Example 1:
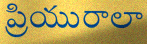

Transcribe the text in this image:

ప్రియురాలా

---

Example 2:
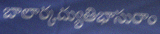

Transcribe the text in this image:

బాలార్కద్యుతిభాసురాం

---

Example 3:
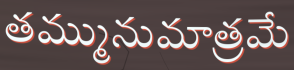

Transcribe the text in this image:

తమ్మునుమాత్రమే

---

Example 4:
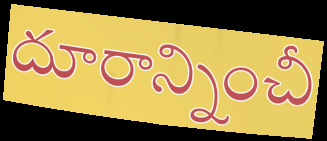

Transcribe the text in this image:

దూరాన్నించీ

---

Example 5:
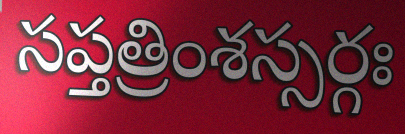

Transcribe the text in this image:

సప్తత్రింశస్సర్గః